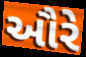
ઔરે